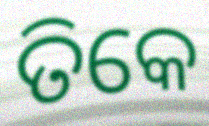
ତିକେ